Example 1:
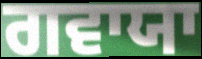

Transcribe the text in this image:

ਗਵਾਯਾ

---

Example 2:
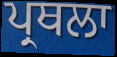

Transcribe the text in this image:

ਪ੍ਰਥਲਾ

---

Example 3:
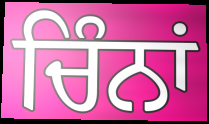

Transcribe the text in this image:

ਚਿੰਨਾਂ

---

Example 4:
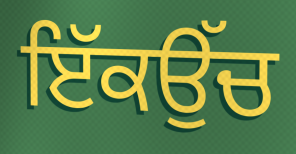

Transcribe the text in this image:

ਇੱਕਉੱਚ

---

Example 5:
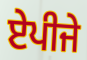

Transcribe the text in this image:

ਏਪੀਜੇ